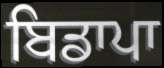
ਬਿਡਾਪਾ